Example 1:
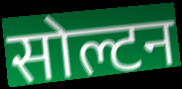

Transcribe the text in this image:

सोल्टन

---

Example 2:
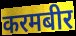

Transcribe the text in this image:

करमबीर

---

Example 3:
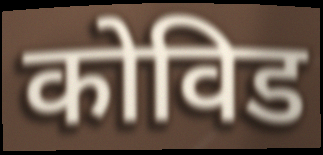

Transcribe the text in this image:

कोविड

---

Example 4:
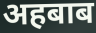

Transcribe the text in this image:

अहबाब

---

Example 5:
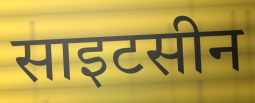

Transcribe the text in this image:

साइटसीन